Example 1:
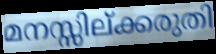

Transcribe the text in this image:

മനസ്സില്ക്കരുതി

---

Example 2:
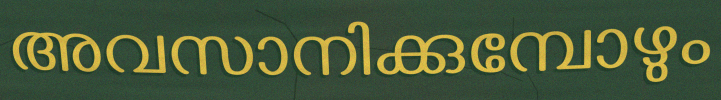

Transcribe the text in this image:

അവസാനിക്കുമ്പോഴും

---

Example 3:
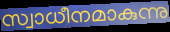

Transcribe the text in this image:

സ്വാധീനമാകുന്നു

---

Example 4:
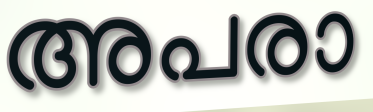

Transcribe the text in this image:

അപരാ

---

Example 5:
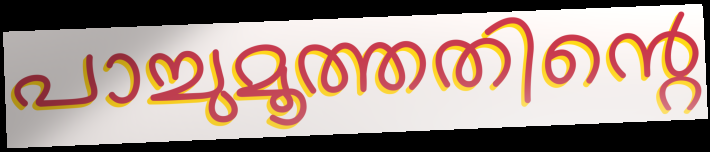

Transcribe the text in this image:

പാച്ചുമൂത്തതിന്റെ